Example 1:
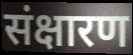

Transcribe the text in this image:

संक्षारण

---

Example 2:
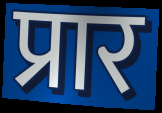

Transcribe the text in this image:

प्रार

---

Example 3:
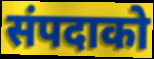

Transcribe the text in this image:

संपदाको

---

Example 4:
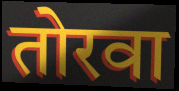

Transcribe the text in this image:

तोरवा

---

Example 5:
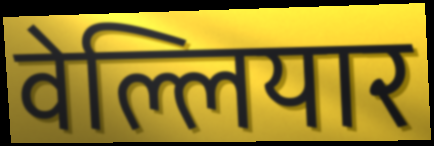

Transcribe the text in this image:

वेल्लियार